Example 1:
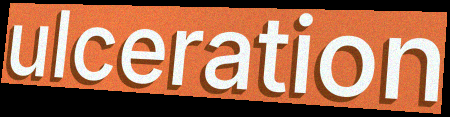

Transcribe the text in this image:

ulceration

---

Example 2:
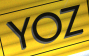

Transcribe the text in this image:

YOZ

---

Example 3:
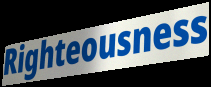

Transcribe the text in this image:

Righteousness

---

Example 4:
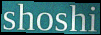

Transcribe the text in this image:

shoshi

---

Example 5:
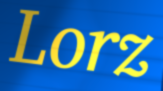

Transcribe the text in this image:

Lorz